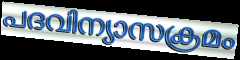
പദവിന്യാസക്രമം